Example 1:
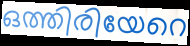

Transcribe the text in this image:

ഒത്തിരിയേറെ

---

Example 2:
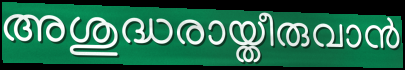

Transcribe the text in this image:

അശുദ്ധരായ്തീരുവാൻ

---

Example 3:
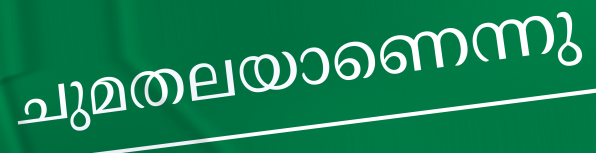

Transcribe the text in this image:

ചുമതലയാണെന്നു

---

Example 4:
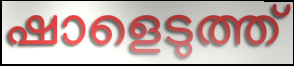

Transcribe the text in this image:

ഷാളെടുത്ത്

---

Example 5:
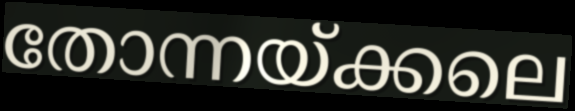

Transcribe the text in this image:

തോന്നയ്ക്കലെ